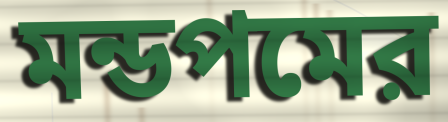
মন্ডপমের